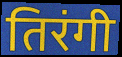
तिरंगी